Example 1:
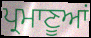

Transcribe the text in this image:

ਪ੍ਰਮਾਣੂਆਂ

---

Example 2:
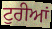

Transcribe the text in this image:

ਟੁਰੀਆਂ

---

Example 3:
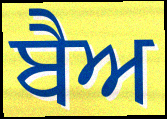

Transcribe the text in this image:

ਬੈਅ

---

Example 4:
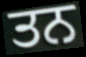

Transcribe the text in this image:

ਤਨ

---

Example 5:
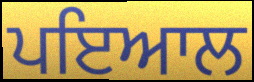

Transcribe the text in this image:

ਪਇਆਲ